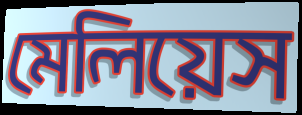
মেলিয়েস